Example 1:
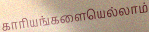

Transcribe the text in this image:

காரியங்களையெல்லாம்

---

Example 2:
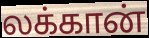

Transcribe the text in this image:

லக்கான்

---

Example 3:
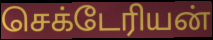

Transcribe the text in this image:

செக்டேரியன்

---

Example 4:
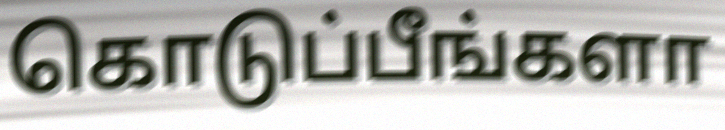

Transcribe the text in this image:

கொடுப்பீங்களா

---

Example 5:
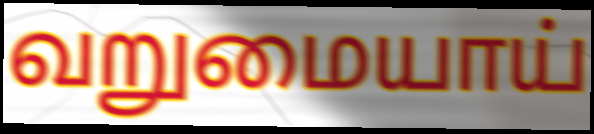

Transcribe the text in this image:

வறுமையாய்